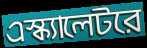
এস্ক্যালেটরে